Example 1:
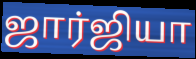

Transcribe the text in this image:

ஜார்ஜியா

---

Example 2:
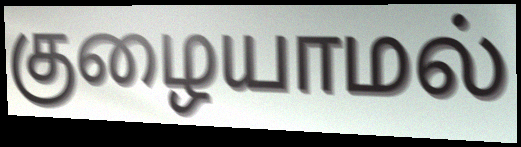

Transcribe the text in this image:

குழையாமல்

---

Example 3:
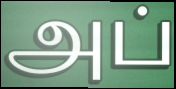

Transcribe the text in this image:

அப்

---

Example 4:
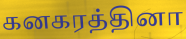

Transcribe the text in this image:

கனகரத்தினா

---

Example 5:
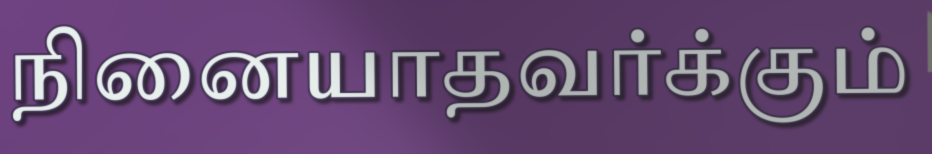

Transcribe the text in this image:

நினையாதவர்க்கும்